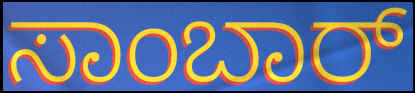
ಸಾಂಬಾರ್